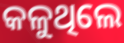
କଳୁଥିଲେ